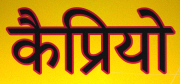
कैप्रियो